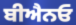
ਬੀਐਨਓ